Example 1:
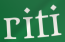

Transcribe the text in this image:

riti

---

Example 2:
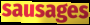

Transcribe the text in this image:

sausages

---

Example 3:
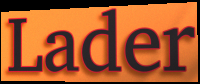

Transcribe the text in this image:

Lader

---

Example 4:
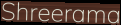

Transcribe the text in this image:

Shreerama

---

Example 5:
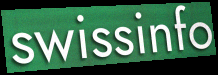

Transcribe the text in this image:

swissinfo